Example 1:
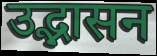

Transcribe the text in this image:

उद्भासन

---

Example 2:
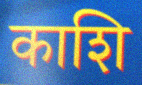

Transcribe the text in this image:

काशि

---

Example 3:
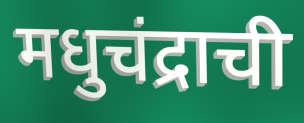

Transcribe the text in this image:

मधुचंद्राची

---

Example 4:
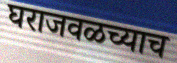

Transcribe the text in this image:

घराजवळच्याच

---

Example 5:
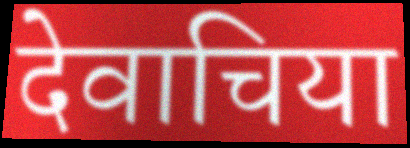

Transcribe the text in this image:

देवाचिया